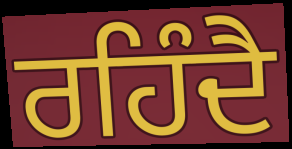
ਰਹਿੰਦੈ